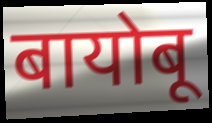
बायोबू